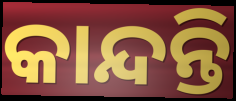
କାନ୍ଦନ୍ତି